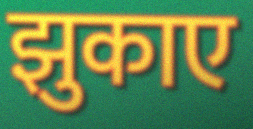
झुकाए